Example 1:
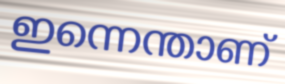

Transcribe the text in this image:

ഇന്നെന്താണ്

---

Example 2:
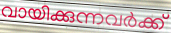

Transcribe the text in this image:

വായിക്കുന്നവർക്ക്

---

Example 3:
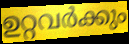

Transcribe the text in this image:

ഉറ്റവർക്കും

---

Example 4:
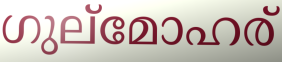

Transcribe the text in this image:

ഗുല്മോഹര്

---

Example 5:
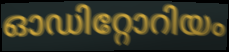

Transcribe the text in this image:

ഓഡിറ്റോറിയം